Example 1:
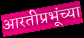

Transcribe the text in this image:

आरतीप्रभूंच्या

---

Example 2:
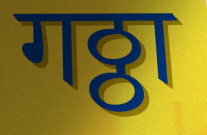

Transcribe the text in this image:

गठ्ठा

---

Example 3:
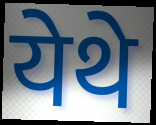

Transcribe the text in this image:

येथे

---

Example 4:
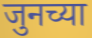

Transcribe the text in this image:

जुनच्या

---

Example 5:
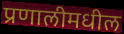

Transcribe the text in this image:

प्रणालीमधील